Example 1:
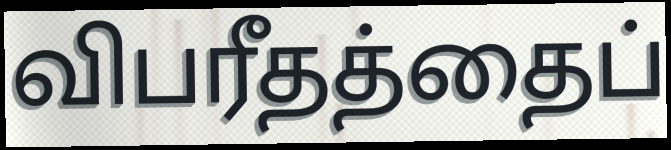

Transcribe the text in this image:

விபரீதத்தைப்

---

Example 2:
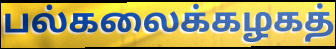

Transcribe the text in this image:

பல்கலைக்கழகத்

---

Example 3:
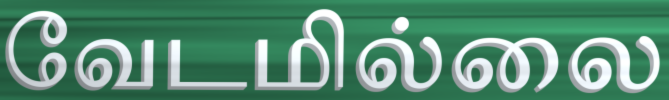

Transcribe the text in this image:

வேடமில்லை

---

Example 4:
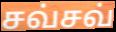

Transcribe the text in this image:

சவ்சவ்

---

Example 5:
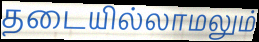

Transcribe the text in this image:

தடையில்லாமலும்